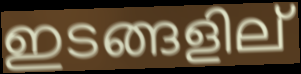
ഇടങ്ങളില്